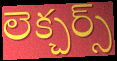
లెక్చర్స్